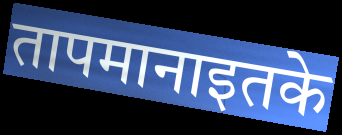
तापमानाइतके